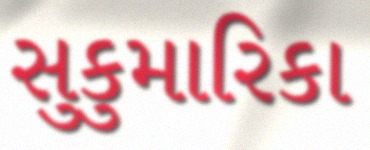
સુકુમારિકા